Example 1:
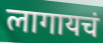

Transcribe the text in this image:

लागायचं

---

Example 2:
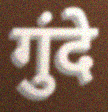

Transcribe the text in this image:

गुंदे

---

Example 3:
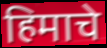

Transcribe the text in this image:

हिमाचे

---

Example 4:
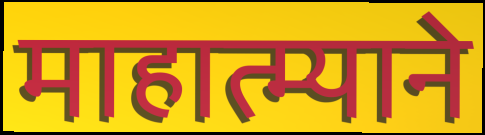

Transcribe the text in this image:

माहात्म्याने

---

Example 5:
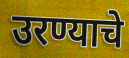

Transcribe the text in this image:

उरण्याचे